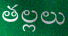
తల్లలు